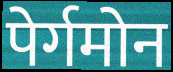
पेर्गमोन